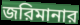
জরিমানার